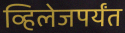
व्हिलेजपर्यंत